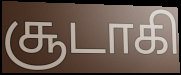
சூடாகி